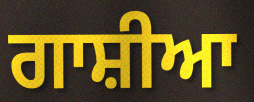
ਗਾਸ਼ੀਆ